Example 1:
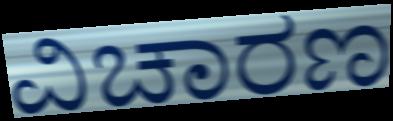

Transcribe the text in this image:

ವಿಚಾರಣ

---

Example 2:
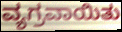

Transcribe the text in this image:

ವ್ಯಗ್ರವಾಯಿತು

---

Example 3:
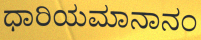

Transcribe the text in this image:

ಧಾರಿಯಮಾನಾನಂ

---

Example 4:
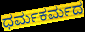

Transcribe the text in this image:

ಧರ್ಮಕರ್ಮದ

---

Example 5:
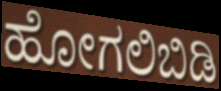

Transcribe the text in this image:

ಹೋಗಲಿಬಿಡಿ